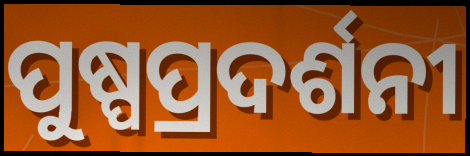
ପୁଷ୍ପପ୍ରଦର୍ଶନୀ